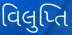
વિલુપ્તિ